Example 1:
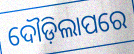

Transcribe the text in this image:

ଦୌଡ଼ିଲାପରେ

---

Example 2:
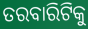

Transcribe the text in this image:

ତରବାରିଟିକୁ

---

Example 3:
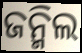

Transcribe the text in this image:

ଜନ୍ମିଲ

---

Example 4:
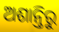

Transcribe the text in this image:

ଅଶାନ୍ତିରୁ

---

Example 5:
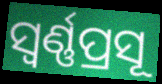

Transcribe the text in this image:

ସ୍ବର୍ଣ୍ଣପ୍ରସୂ